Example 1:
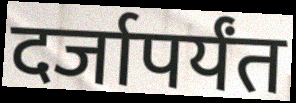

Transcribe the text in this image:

दर्जापर्यंत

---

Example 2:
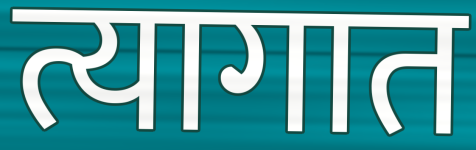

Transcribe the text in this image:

त्यागात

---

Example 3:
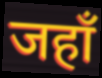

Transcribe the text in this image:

जहाँ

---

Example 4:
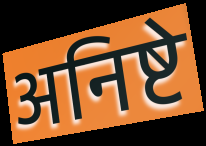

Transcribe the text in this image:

अनिष्टे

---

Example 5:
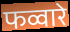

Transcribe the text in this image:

फव्वारे